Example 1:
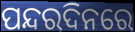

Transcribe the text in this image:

ପନ୍ଦରଦିନରେ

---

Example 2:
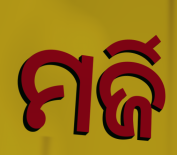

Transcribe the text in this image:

ମର୍ଜି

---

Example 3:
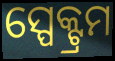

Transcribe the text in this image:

ସ୍ପେକ୍ଟ୍ରମ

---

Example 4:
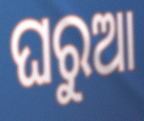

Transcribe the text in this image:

ଘରୁଆ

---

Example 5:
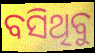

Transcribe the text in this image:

ବସିଥିବୁ